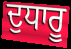
ਦੁਧਾਰੂ